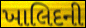
ખાલિદની